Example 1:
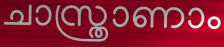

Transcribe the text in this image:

ചാസ്ത്രാണാം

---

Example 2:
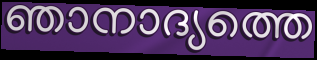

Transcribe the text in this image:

ഞാനാദ്യത്തെ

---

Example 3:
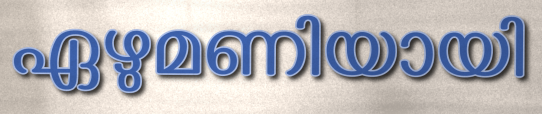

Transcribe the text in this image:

ഏഴുമണിയായി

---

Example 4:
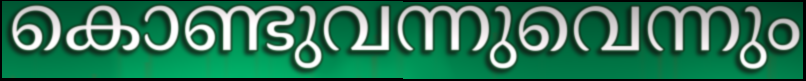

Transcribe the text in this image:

കൊണ്ടുവന്നുവെന്നും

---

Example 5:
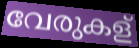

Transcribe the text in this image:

വേരുകള്